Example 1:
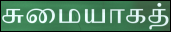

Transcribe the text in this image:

சுமையாகத்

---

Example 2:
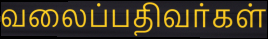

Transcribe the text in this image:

வலைப்பதிவர்கள்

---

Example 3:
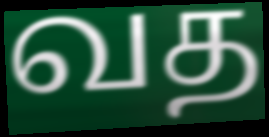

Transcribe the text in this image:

வத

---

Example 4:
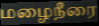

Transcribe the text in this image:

மழைநீரை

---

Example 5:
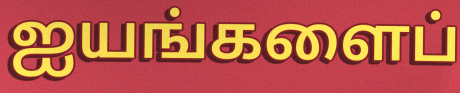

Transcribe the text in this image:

ஐயங்களைப்